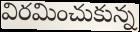
విరమించుకున్న